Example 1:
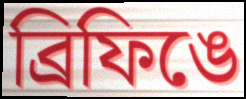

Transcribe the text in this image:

ব্রিফিঙে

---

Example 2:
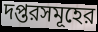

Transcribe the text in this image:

দপ্তরসমূহের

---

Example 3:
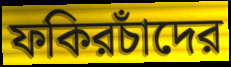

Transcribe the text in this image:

ফকিরচাঁদের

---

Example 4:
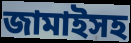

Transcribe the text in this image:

জামাইসহ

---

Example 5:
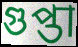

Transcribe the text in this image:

গুপ্তা